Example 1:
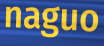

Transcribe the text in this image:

naguo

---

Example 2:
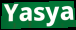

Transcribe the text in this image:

Yasya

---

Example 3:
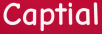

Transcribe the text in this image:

Captial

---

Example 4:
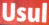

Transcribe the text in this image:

Usul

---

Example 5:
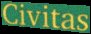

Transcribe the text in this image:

Civitas